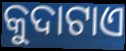
କୁଦାଟାଏ